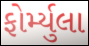
ફોર્મ્યુલા